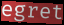
egret